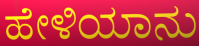
ಹೇಳಿಯಾನು